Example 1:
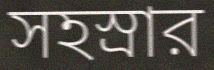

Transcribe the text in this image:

সহস্রার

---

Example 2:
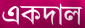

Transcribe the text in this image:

একদাল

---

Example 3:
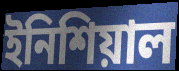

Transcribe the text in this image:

ইনিশিয়াল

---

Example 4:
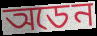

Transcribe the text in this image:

অডেন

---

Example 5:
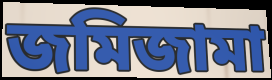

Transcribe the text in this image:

জমিজামা